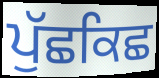
ਪੁੱਛਕਿਛ